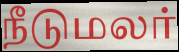
நீடுமலர்